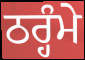
ਠਰ੍ਹੰਮੇ